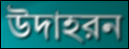
উদাহরন